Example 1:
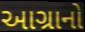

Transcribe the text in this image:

આગ્રાનો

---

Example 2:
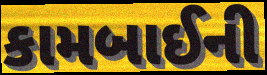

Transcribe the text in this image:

કામબાઈની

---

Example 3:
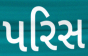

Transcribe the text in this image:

પરિસ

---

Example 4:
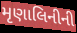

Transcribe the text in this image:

મૃણાલિનીની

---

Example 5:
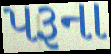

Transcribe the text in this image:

પરૂના